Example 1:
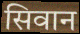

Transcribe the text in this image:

सिवान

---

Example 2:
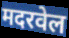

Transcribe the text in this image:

मदरवेल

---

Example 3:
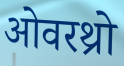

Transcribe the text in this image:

ओवरथ्रो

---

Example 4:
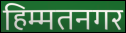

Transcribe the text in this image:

हिम्मतनगर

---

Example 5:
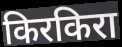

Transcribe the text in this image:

किरकिरा